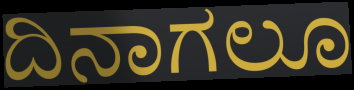
ದಿನಾಗಲೂ